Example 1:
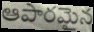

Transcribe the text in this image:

ఆపారమైన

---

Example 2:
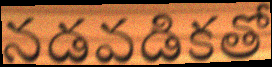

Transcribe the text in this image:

నడవడికతో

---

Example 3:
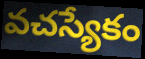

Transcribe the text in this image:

వచస్యేకం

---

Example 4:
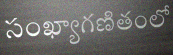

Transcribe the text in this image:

సంఖ్యాగణితంలో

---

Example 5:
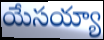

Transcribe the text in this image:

యేసయ్యా